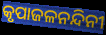
କୃପାଜଳନନ୍ଦିନୀ